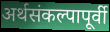
अर्थसंकल्पापूर्वी